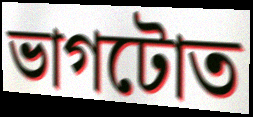
ভাগটোত